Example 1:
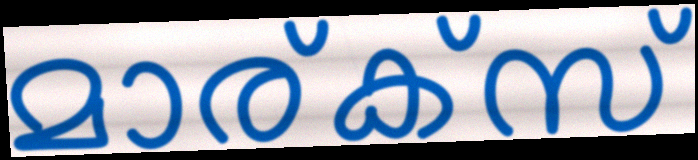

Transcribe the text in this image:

മാര്ക്സ്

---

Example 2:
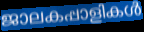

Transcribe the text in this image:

ജാലകപ്പാളികൾ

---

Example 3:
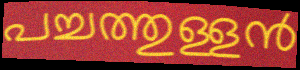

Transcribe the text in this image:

പച്ചത്തുള്ളൻ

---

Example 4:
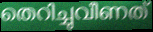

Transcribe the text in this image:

തെറിച്ചുവീണത്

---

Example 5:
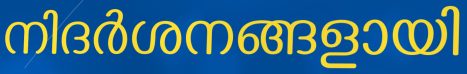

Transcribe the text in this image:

നിദർശനങ്ങളായി